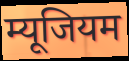
म्यूजियम